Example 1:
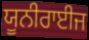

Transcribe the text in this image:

ਯੂਨੀਰਾਈਜ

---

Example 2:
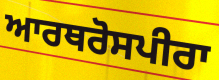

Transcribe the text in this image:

ਆਰਥਰੋਸਪੀਰਾ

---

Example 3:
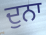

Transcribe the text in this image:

ਦੁਨਾ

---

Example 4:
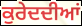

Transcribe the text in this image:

ਕੁਰੇਦਦੀਆਂ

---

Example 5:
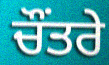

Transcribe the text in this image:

ਚੌਂਤਰੇ